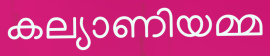
കല്യാണിയമ്മ